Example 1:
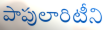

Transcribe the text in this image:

పాపులారిటీని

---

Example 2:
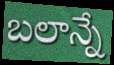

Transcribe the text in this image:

బలాన్నే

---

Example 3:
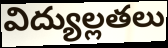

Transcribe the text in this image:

విద్యుల్లతలు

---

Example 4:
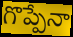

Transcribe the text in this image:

గొప్పేనా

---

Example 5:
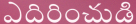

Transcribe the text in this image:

ఎదిరించుడి